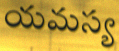
యమస్య